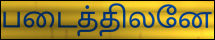
படைத்திலனே